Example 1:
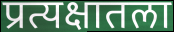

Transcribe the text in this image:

प्रत्यक्षातला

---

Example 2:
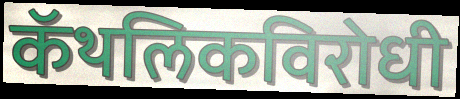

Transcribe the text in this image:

कॅथलिकविरोधी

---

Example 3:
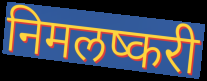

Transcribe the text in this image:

निमलष्करी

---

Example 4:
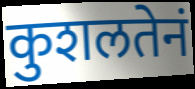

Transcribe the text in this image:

कुशलतेनं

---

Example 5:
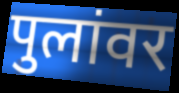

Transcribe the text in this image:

पुलांवर